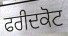
ਫਰੀਦਕੋਟ